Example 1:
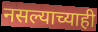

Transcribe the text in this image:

नसल्याच्याही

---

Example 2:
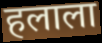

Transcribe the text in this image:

हलाला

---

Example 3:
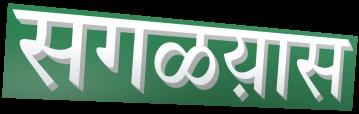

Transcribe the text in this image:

सगळय़ास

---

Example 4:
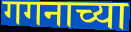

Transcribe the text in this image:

गगनाच्या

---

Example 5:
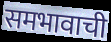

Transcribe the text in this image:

समभावाची